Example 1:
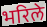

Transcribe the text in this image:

भरिले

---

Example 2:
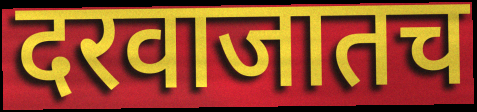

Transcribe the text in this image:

दरवाजातच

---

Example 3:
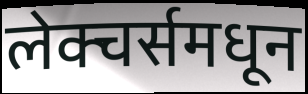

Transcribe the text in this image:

लेक्चर्समधून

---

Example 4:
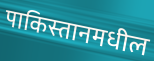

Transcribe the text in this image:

पाकिस्तानमधील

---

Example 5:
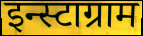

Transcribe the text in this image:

इन्स्टाग्राम